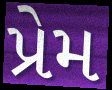
પ્રેમ